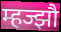
म्हज्झौ